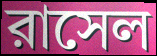
রাসেল